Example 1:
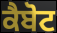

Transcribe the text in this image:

ਕੈਬੋਟ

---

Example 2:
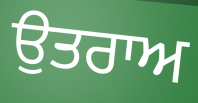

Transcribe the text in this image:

ਉਤਰਾਅ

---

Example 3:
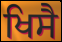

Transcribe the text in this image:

ਖਿਸੈ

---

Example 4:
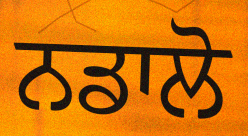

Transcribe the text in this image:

ਨਡਾਲੋ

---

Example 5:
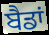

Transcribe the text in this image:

ਬੈਡਾਂ